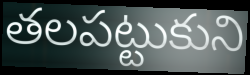
తలపట్టుకుని